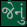
જેનું